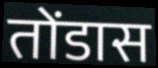
तोंडास